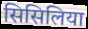
सिसिलिया